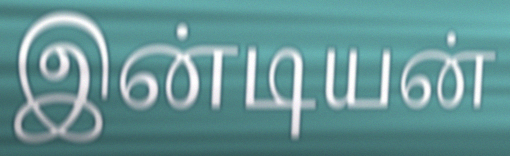
இன்டியன்